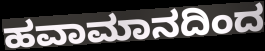
ಹವಾಮಾನದಿಂದ